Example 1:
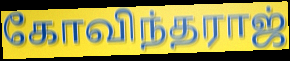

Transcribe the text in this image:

கோவிந்தராஜ்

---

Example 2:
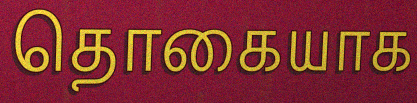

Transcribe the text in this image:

தொகையாக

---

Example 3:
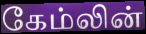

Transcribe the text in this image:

கேம்லின்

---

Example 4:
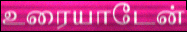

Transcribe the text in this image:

உரையாடேன்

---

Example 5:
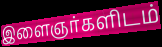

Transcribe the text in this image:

இளைஞர்களிடம்